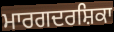
ਮਾਰਗਦਰਸ਼ਿਕਾ